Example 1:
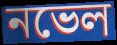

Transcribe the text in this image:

নভেল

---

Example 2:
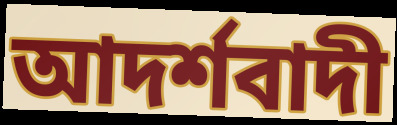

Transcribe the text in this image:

আদর্শবাদী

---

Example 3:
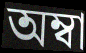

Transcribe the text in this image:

অম্বা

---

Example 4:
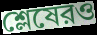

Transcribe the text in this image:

শ্লেষেরও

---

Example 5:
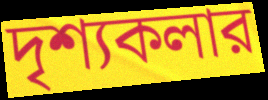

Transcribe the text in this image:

দৃশ্যকলার